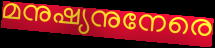
മനുഷ്യനുനേരെ